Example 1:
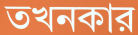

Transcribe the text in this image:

তখনকার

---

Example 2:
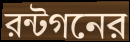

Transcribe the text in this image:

রন্টগনের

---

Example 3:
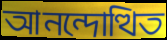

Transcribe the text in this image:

আনন্দোত্থিত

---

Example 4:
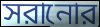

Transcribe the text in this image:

সরানোর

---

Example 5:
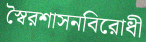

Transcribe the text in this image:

স্বৈরশাসনবিরোধী